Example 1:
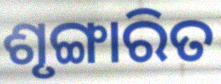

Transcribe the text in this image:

ଶୃଙ୍ଗାରିତ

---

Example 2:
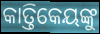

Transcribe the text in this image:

କାତ୍ତିକେୟଙ୍କୁ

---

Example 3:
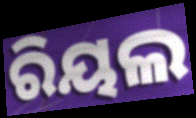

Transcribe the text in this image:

ରିୟଲ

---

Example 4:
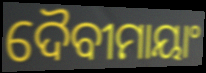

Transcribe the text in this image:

ଦୈବୀମାୟାଂ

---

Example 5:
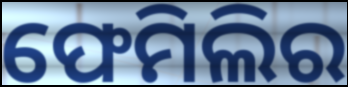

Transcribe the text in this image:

ଫେମିଲିର